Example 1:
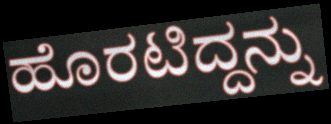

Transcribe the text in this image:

ಹೊರಟಿದ್ದನ್ನು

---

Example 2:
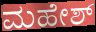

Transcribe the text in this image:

ಮಹೇಶ್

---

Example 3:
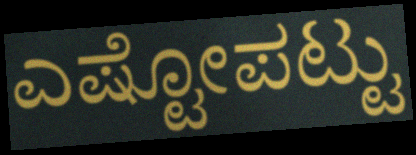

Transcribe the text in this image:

ಎಷ್ಟೋಪಟ್ಟು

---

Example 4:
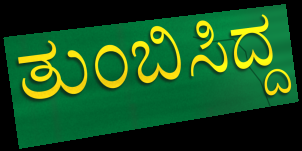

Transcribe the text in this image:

ತುಂಬಿಸಿದ್ದ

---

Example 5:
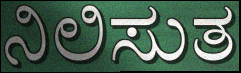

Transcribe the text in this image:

ನಿಲಿಸುತ